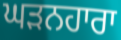
ਘੜਨਹਾਰਾ